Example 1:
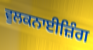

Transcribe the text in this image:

ਵੁਲਕਨਾਈਜ਼ਿੰਗ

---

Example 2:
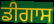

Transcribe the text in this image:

ਡੀਗਾਸ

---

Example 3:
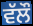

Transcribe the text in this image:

ਵੱਲੌ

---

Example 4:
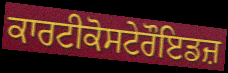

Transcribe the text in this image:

ਕਾਰਟੀਕੋਸਟੇਰੌਇਡਜ਼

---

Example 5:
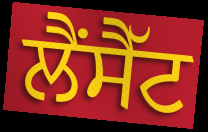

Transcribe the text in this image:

ਲੈਂਸੈੱਟ